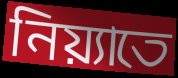
নিয়্যাতে